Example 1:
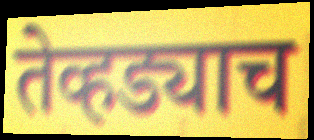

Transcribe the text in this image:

तेव्हड्याच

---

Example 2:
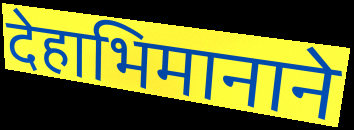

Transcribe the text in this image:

देहाभिमानाने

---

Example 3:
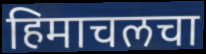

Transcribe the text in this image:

हिमाचलचा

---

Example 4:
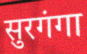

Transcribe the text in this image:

सुरगंगा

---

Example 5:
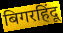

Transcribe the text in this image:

बिगरहिंदू